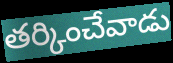
తర్కించేవాడు